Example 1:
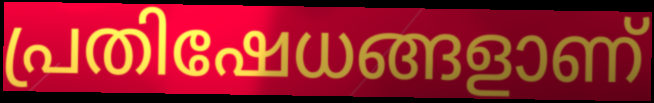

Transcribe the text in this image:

പ്രതിഷേധങ്ങളാണ്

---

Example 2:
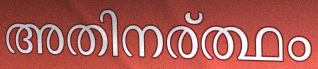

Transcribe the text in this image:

അതിനര്ത്ഥം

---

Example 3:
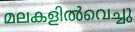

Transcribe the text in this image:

മലകളിൽവെച്ചു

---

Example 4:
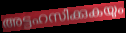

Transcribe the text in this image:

അട്ടഹസിക്കുകയും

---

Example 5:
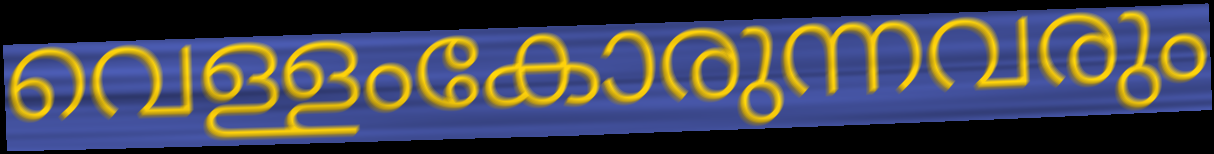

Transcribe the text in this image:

വെള്ളംകോരുന്നവരും